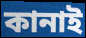
কানাই